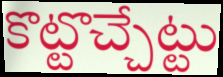
కొట్టొచ్చేట్టు